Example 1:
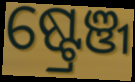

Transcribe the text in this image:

ଷ୍ଟ୍ରେଞ୍ଜ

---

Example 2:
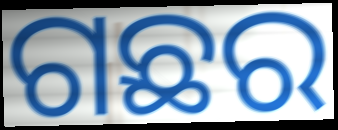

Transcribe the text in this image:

ଗଛର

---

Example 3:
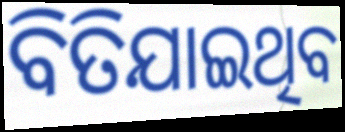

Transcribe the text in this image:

ବିତିଯାଇଥିବ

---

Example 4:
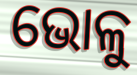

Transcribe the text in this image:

ଭୋଳୁ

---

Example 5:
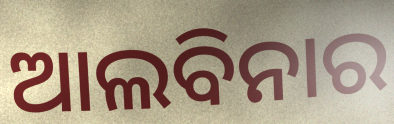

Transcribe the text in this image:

ଆଲବିନାର